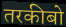
तरकीबो